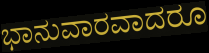
ಭಾನುವಾರವಾದರೂ